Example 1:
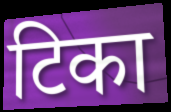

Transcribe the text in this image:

टिका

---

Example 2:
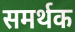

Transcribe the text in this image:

समर्थक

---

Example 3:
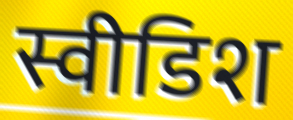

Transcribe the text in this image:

स्वीडिश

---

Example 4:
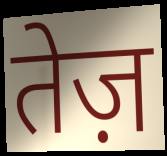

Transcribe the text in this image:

तेज़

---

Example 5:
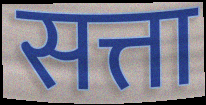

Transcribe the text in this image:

सत्ता